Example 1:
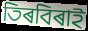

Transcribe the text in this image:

তিৰবিৰাই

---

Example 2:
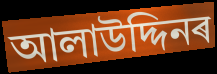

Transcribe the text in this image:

আলাউদ্দিনৰ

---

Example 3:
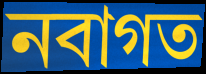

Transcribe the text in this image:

নবাগত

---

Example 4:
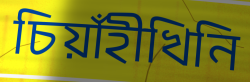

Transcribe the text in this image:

চিয়াঁহীখিনি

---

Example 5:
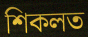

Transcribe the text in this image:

শিকলত